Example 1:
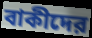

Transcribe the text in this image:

বাকীদের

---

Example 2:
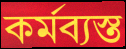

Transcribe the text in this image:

কর্মব্যস্ত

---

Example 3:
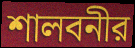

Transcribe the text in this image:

শালবনীর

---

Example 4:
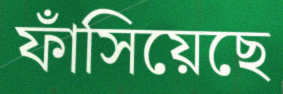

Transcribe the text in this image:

ফাঁসিয়েছে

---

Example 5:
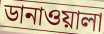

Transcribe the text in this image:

ডানাওয়ালা